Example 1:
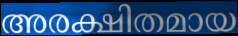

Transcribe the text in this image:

അരക്ഷിതമായ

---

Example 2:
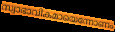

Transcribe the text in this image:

സ്വാഭാവികമായെന്നോണം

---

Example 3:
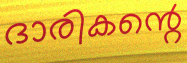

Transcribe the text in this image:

ദാരികന്റെ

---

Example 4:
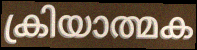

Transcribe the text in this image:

ക്രിയാത്മക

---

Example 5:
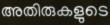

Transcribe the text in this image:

അതിരുകളുടെ